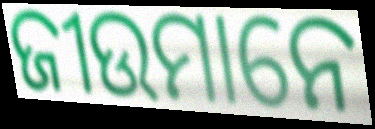
ଜୀଉମାନେ